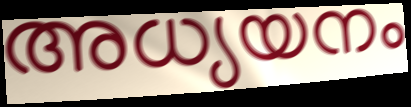
അധ്യയനം